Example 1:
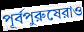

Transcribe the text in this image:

পূর্বপুরুষেরাও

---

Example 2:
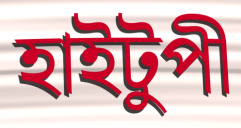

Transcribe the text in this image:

হাইটুপী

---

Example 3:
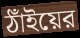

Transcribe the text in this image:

ঠাঁইয়ের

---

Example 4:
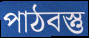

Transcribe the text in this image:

পাঠবস্তু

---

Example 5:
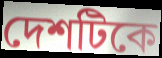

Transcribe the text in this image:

দেশটিকে